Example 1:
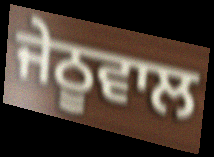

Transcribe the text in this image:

ਜੇਠੂਵਾਲ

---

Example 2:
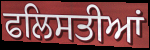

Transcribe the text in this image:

ਫਲਿਸਤੀਆਂ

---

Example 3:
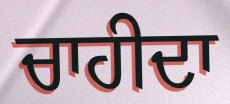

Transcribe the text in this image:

ਚਾਹੀਦਾ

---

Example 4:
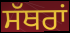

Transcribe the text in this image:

ਸੱਥਰਾਂ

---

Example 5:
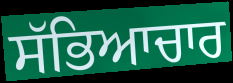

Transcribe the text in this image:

ਸੱਭਿਆਚਾਰ